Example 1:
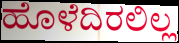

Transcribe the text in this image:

ಹೊಳೆದಿರಲಿಲ್ಲ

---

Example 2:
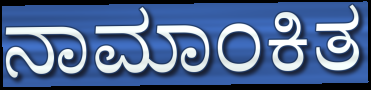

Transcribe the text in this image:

ನಾಮಾಂಕಿತ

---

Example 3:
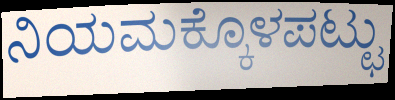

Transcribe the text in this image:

ನಿಯಮಕ್ಕೊಳಪಟ್ಟು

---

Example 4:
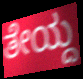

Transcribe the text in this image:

ತೇಯ್ದ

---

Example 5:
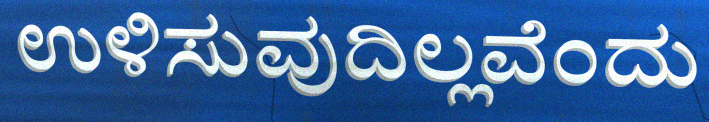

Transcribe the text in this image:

ಉಳಿಸುವುದಿಲ್ಲವೆಂದು